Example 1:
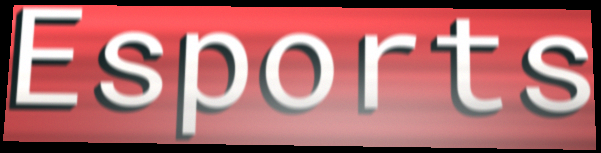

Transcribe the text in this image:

Esports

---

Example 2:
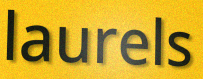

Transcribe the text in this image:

laurels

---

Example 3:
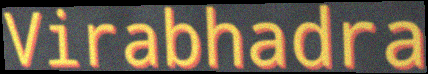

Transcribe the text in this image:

Virabhadra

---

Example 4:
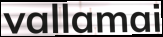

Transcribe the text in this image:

vallamai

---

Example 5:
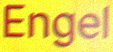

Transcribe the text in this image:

Engel